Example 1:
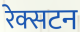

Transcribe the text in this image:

रेक्सटन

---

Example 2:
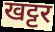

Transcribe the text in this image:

खट्टर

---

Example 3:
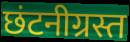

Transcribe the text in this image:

छंटनीग्रस्त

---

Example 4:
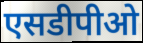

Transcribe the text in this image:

एसडीपीओ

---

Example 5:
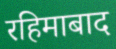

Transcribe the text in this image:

रहिमाबाद